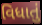
વિધાતું